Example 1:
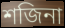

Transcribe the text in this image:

শজিনা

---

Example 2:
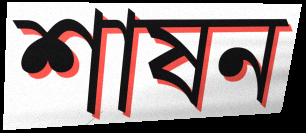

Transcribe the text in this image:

শাষন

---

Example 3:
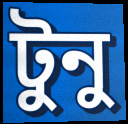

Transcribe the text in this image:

টুনু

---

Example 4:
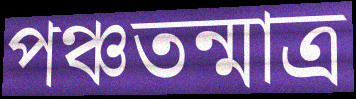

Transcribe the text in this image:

পঞ্চতন্মাত্র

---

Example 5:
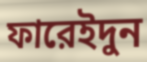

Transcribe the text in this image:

ফারেইদুন